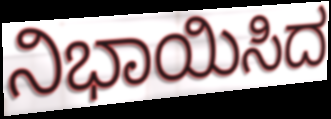
ನಿಭಾಯಿಸಿದ